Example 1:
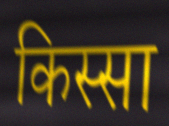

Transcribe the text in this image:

किस्सा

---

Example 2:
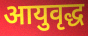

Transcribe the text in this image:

आयुवृद्ध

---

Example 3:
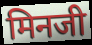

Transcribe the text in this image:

मिनजी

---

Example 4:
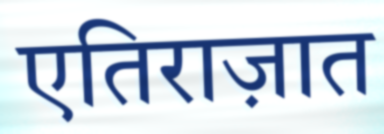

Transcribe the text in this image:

एतिराज़ात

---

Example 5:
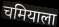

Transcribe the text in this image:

चमियाला